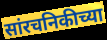
सांरचनिकीच्या